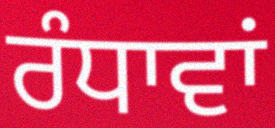
ਰੰਧਾਵਾਂ